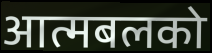
आत्मबलको